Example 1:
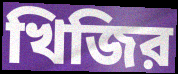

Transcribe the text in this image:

খিজির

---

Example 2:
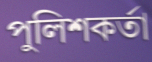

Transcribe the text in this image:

পুলিশকর্তা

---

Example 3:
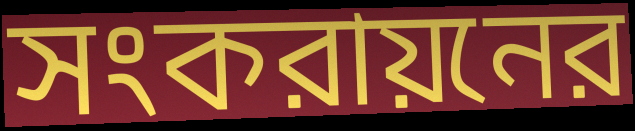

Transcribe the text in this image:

সংকরায়নের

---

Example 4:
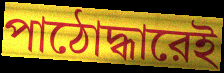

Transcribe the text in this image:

পাঠোদ্ধারেই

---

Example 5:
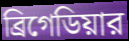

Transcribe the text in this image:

ব্রিগেডিয়ার